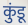
कुंडू